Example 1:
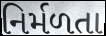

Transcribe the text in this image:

નિર્મળતા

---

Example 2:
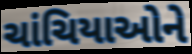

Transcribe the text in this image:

ચાંચિયાઓને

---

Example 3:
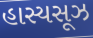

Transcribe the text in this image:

હાસ્યસૂઝ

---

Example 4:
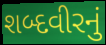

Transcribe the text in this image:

શબ્દવીરનું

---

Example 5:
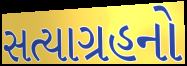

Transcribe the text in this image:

સત્યાગ્રહનો